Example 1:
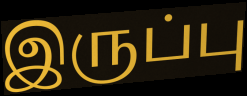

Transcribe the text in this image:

இருப்பு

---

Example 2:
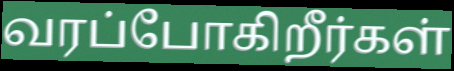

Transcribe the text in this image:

வரப்போகிறீர்கள்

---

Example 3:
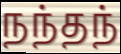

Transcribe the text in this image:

நந்தந்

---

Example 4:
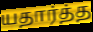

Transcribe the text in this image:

யதார்த்த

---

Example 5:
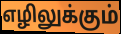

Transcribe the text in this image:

எழிலுக்கும்